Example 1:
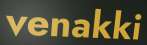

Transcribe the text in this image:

venakki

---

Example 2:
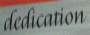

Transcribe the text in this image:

dedication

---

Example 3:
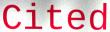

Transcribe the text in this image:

Cited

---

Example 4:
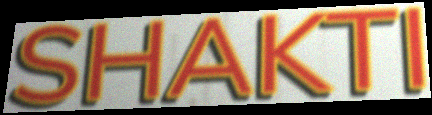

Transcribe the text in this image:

SHAKTI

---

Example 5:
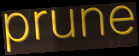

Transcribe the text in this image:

prune